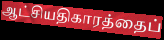
ஆட்சியதிகாரத்தைப்